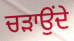
ਚੜਾਉਂਦੇ